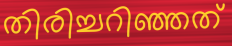
തിരിച്ചറിഞ്ഞത്